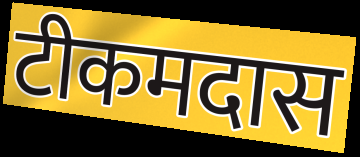
टीकमदास